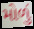
મોળું